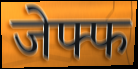
जेफ्फ